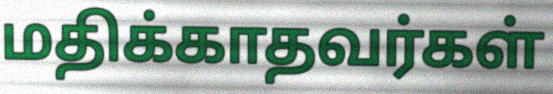
மதிக்காதவர்கள்